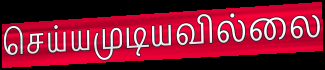
செய்யமுடியவில்லை